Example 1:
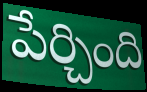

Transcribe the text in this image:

పేర్చింది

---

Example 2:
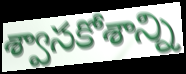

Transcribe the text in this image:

శ్వాసకోశాన్ని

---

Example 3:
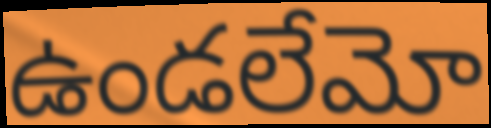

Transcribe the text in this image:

ఉండలేమో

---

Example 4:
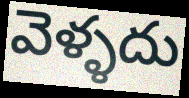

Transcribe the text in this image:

వెళ్ళదు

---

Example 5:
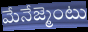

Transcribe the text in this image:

మేనేజ్మెంటు